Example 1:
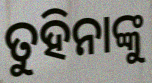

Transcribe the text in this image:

ତୁହିନାଙ୍କୁ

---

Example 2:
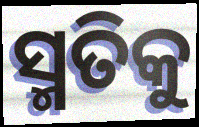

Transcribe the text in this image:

ସ୍ମତିକୁ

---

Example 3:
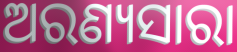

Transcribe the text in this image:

ଅରଣ୍ୟସାରା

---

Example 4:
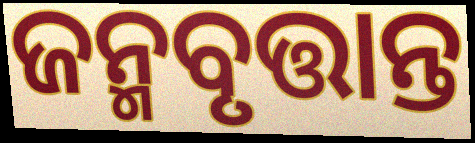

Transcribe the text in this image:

ଜନ୍ମବୃତ୍ତାନ୍ତ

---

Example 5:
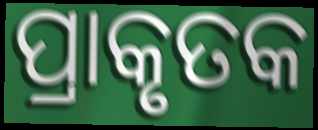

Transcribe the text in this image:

ପ୍ରାକୃତକ